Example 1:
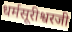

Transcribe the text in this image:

धर्मसूरीश्वरजी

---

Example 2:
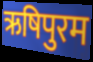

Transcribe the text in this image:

ऋषिपुरम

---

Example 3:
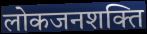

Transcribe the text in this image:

लोकजनशक्ति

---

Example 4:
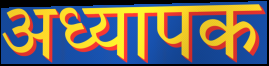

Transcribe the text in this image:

अध्‍यापक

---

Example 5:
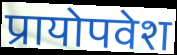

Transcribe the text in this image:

प्रायोपवेश